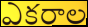
ఎకరాల